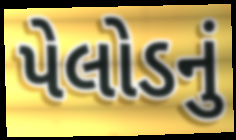
પેલોડનું